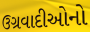
ઉગ્રવાદીઓનો